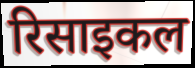
रिसाइकल